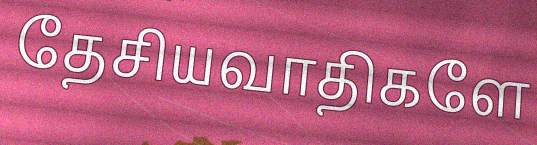
தேசியவாதிகளே